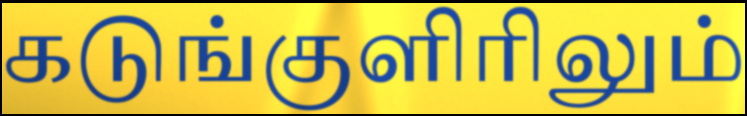
கடுங்குளிரிலும்